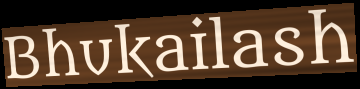
Bhukailash